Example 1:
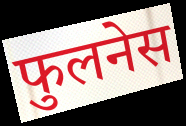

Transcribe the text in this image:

फुलनेस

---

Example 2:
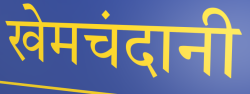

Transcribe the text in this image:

खेमचंदानी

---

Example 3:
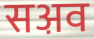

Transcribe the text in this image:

सअ़व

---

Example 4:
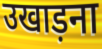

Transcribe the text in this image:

उखाड़ना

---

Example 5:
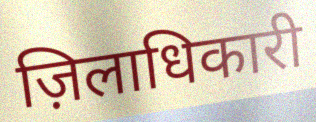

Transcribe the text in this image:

ज़िलाधिकारी